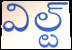
విల్ట్